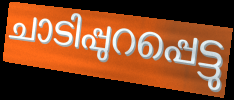
ചാടിപ്പുറപ്പെട്ടു